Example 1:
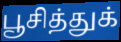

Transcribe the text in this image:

பூசித்துக்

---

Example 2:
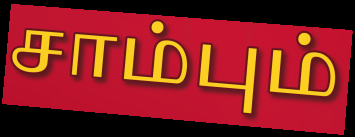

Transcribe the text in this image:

சாம்பும்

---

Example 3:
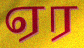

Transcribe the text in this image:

ஏர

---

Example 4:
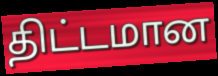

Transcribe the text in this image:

திட்டமான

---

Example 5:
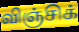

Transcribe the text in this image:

விஞ்சிக்